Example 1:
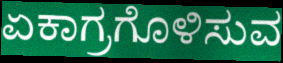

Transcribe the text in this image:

ಏಕಾಗ್ರಗೊಳಿಸುವ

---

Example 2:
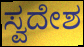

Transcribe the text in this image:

ಸ್ವದೇಶ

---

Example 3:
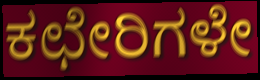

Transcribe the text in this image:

ಕಛೇರಿಗಳೇ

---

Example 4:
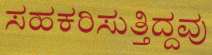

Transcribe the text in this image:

ಸಹಕರಿಸುತ್ತಿದ್ದವು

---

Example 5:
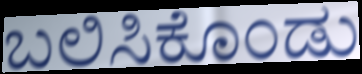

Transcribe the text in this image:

ಬಲಿಸಿಕೊಂಡು